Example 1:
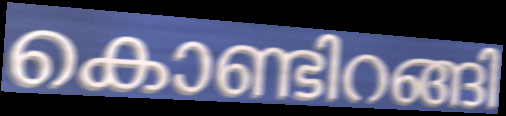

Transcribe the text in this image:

കൊണ്ടിറങ്ങി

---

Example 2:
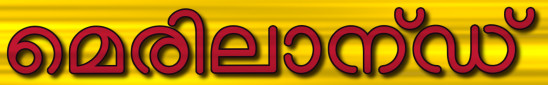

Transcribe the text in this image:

മെരിലാന്ഡ്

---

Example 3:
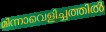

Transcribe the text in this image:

മിന്നാവെളിച്ചത്തിൽ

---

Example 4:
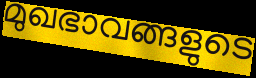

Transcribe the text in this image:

മുഖഭാവങ്ങളുടെ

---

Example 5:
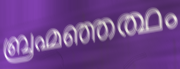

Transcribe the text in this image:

ബ്രഹ്മഞ്ഞത്ഥം